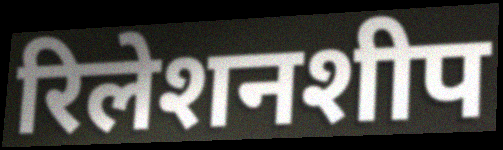
रिलेशनशीप